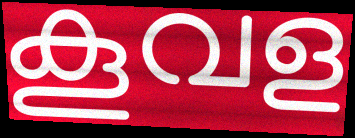
കൂവള